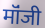
मॉंजी